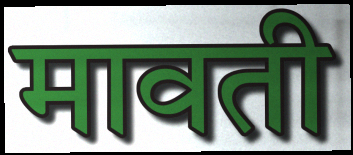
मावती